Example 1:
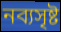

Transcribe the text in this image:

নব্যসৃষ্ট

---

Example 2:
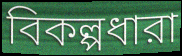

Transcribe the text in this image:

বিকল্পধারা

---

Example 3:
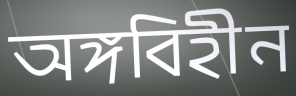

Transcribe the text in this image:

অঙ্গবিহীন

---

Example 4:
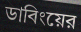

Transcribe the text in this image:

ডাবিংয়ের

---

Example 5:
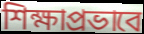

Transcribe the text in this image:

শিক্ষাপ্রভাবে